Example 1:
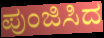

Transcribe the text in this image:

ಪುಂಜಿಸಿದ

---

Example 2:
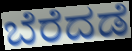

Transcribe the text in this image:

ಬೆರೆದಡೆ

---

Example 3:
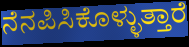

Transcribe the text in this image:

ನೆನಪಿಸಿಕೊಳ್ಳುತ್ತಾರೆ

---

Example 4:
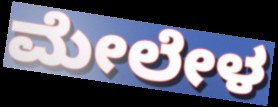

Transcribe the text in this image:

ಮೇಲೇಳ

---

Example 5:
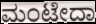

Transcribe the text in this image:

ಮಂಟೇದಾ